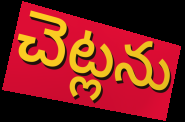
చెట్లను